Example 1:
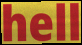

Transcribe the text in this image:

hell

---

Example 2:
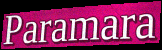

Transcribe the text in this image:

Paramara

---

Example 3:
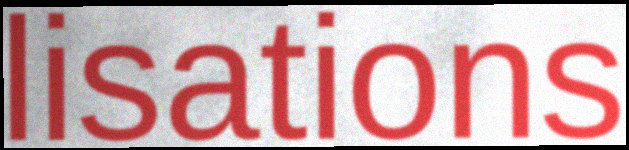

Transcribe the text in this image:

lisations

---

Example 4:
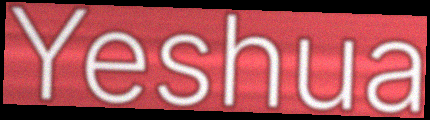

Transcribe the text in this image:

Yeshua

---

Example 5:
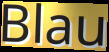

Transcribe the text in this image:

Blau